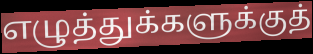
எழுத்துக்களுக்குத்